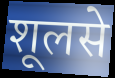
शूलसे